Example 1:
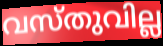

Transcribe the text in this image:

വസ്തുവില്ല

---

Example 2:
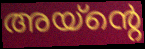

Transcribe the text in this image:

അയ്ന്റെ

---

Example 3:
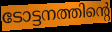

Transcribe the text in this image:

ടോട്ടനത്തിന്റെ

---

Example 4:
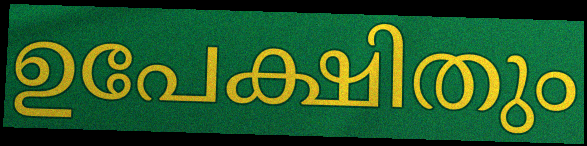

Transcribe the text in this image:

ഉപേക്ഷിതും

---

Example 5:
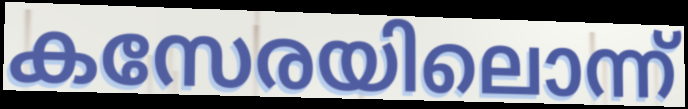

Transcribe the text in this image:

കസേരയിലൊന്ന്